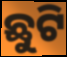
ଛୁଟି